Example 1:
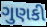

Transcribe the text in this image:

ગુણકી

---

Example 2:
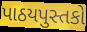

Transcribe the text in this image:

પાઠયપુસ્તકો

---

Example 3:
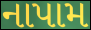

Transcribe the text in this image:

નાપામ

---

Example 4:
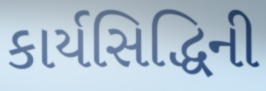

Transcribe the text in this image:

કાર્યસિદ્ધિની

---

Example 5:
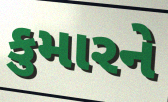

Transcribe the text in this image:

કુમારને